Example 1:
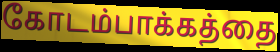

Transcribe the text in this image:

கோடம்பாக்கத்தை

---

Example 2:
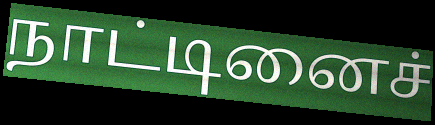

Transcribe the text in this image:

நாட்டினைச்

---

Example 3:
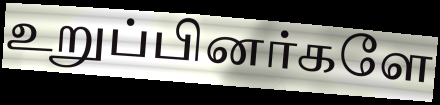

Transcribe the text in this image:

உறுப்பினர்களே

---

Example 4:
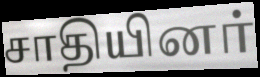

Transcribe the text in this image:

சாதியினர்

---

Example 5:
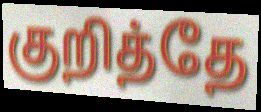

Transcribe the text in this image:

குறித்தே